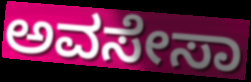
ಅವಸೇಸಾ